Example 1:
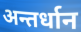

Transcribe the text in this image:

अन्तर्धान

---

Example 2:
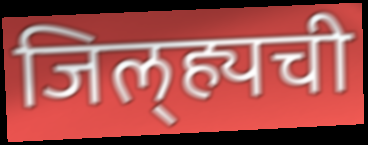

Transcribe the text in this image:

जिल्ह्यची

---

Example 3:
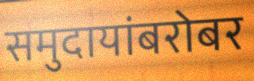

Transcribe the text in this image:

समुदायांबरोबर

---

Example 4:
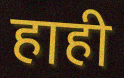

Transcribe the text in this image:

हाही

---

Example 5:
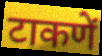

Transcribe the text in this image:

टाकणें